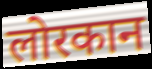
लोरकान